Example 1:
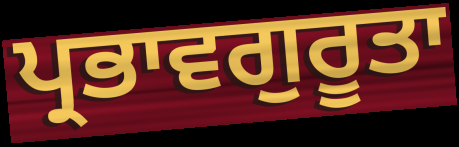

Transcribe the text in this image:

ਪ੍ਰਭਾਵਗੁਰੂਤਾ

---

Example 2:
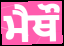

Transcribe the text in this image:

ਮੈਥੌ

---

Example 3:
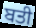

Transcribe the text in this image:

ਬਤੀ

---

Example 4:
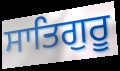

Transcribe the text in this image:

ਸਾਤਿਗੁਰੂ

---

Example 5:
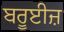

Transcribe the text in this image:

ਬਰੂਈਜ਼